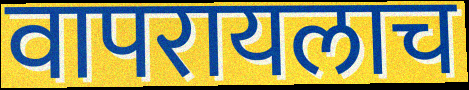
वापरायलाच